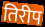
तिरीप